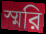
স্মরি